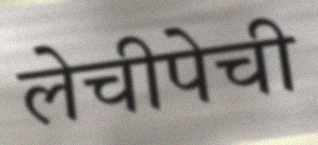
लेचीपेची